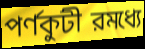
পর্ণকুটীরমধ্যে